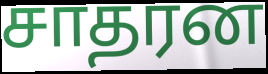
சாதரன